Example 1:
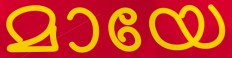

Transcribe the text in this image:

മായേ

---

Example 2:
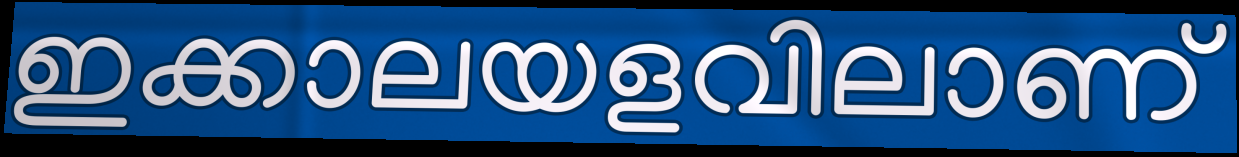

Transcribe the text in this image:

ഇക്കാലയളവിലാണ്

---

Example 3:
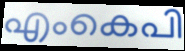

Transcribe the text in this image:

എംകെപി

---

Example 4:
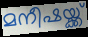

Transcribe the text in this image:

മനീഷയ്ക്ക്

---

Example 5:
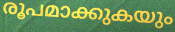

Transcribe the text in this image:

രൂപമാക്കുകയും